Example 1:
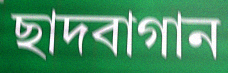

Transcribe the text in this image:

ছাদবাগান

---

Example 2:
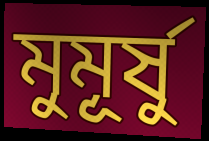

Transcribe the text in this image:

মুমূর্ষু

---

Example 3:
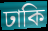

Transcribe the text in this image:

ঢাকি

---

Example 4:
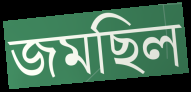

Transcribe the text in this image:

জমছিল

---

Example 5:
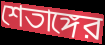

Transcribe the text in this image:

শেতাঙ্গের